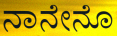
ನಾನೇನೊ